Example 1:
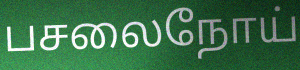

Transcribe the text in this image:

பசலைநோய்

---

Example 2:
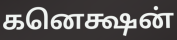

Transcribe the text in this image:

கனெக்ஷன்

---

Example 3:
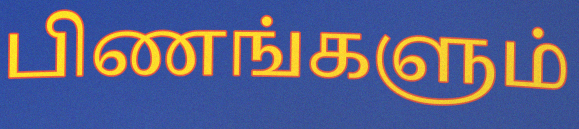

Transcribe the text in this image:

பிணங்களும்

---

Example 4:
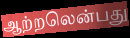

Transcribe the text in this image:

ஆற்றலென்பது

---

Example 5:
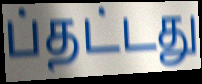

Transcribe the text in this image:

ப்தட்டது